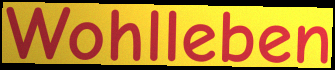
Wohlleben